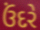
ઉંદરે